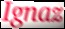
Ignaz